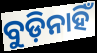
ବୁଡ଼ିନାହିଁ